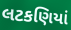
લટકણિયાં